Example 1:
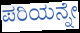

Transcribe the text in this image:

ಪರಿಯನ್ನೇ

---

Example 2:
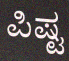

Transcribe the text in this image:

ಪಿಷ್ಟ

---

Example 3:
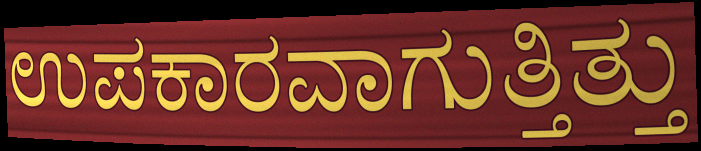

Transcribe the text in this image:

ಉಪಕಾರವಾಗುತ್ತಿತ್ತು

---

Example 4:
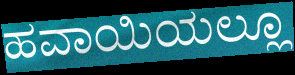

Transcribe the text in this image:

ಹವಾಯಿಯಲ್ಲೂ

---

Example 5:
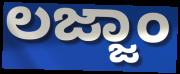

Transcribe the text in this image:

ಲಜ್ಜಾಂ